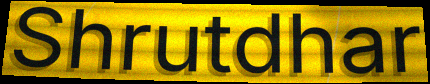
Shrutdhar